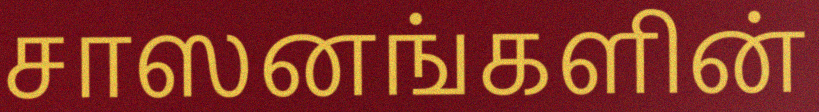
சாஸனங்களின்